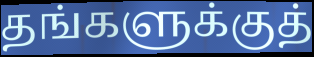
தங்களுக்குத்